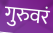
गुरुवरं